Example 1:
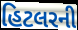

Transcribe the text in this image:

હિટલરની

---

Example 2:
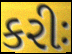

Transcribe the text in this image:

કરીઃ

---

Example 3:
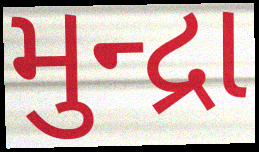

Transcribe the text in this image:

મુન્દ્રા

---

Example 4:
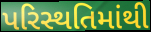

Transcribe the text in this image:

પરિસ્થતિમાંથી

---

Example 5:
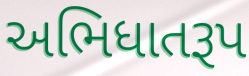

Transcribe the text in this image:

અભિધાતરૂપ